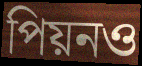
পিয়নও